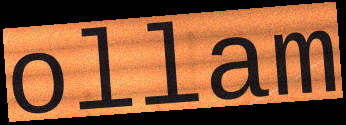
ollam